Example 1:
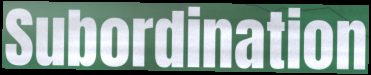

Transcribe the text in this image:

Subordination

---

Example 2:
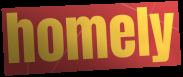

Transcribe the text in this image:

homely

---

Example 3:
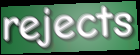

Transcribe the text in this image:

rejects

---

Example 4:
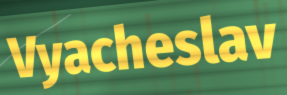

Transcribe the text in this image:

Vyacheslav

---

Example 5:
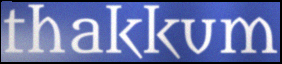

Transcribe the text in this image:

thakkum